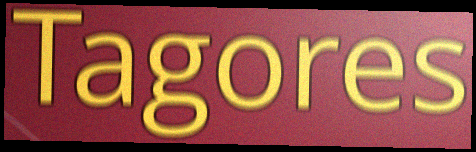
Tagores